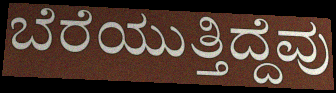
ಬೆರೆಯುತ್ತಿದ್ದೆವು